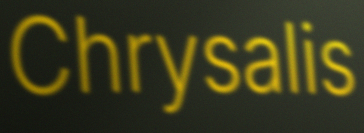
Chrysalis